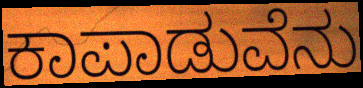
ಕಾಪಾಡುವೆನು